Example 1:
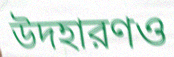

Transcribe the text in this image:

উদহারণও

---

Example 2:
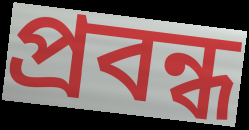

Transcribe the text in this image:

প্রবন্ধ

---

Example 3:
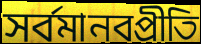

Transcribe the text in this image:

সর্বমানবপ্রীতি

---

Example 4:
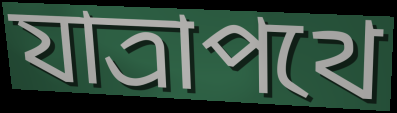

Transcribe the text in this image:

যাত্রাপথে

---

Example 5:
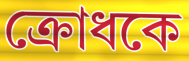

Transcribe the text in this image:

ক্রোধকে